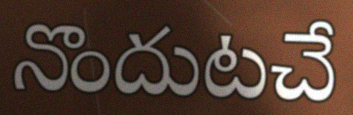
నొందుటచే